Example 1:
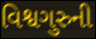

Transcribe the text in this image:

વિશ્વગુરુની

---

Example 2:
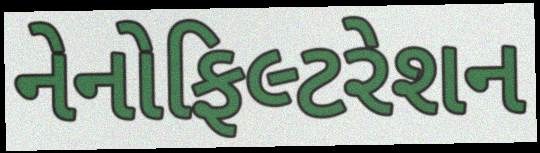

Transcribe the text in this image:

નેનોફિલ્ટરેશન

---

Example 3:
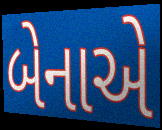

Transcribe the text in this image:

બેનાએ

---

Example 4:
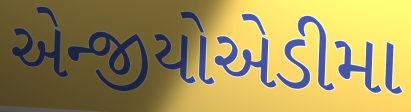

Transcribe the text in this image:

એન્જીયોએડીમા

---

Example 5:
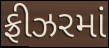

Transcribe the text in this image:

ફ્રીઝરમાં